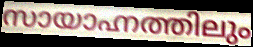
സായാഹ്നത്തിലും